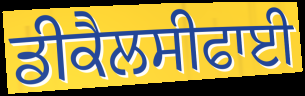
ਡੀਕੈਲਸੀਫਾਈ